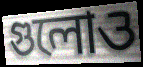
গুলোও